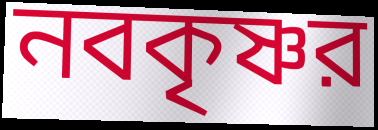
নবকৃষ্ণর